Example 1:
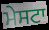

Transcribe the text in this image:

ਮੇਸਟਾ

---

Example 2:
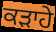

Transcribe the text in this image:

ਕੜਾਹੇ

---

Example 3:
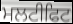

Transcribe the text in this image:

ਮਲਟੀਫਿਟ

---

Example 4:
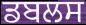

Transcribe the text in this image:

ਡਬਲਸ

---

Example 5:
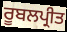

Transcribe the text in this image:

ਰੂਬਲਪ੍ਰੀਤ